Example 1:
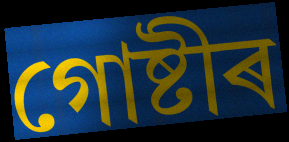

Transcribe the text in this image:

গোষ্টীৰ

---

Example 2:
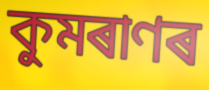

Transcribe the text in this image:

কুমৰাণৰ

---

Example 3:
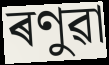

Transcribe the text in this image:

ৰণুৱা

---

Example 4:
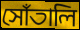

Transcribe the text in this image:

সোঁতালি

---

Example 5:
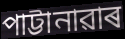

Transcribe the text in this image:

পাট্টানাৱাৰ